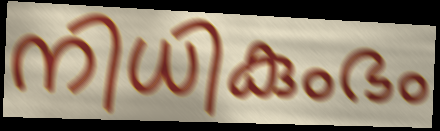
നിധികുംഭം